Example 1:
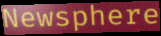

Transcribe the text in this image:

Newsphere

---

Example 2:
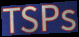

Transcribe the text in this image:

TSPs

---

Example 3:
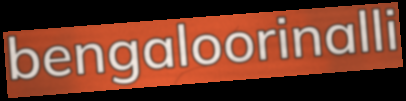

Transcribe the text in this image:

bengaloorinalli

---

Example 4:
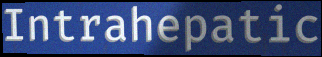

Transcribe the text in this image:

Intrahepatic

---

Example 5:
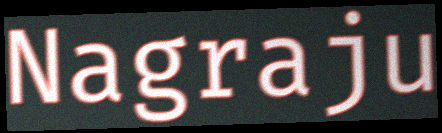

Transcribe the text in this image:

Nagraju